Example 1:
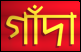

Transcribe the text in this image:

গাঁদা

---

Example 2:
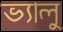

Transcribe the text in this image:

ভ্যালু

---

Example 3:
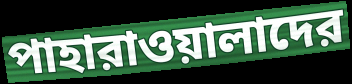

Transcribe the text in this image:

পাহারাওয়ালাদের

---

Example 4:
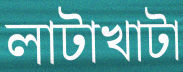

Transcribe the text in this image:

লাটাখাটা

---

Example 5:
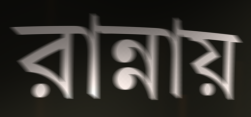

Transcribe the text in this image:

রান্নায়